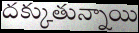
దక్కుతున్నాయి